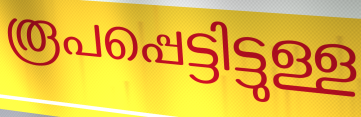
രൂപപ്പെട്ടിട്ടുള്ള